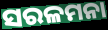
ସରଳମନା